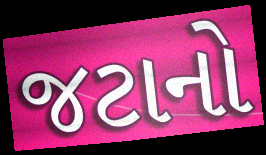
જટાનો